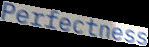
Perfectness